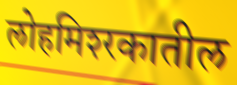
लोहमिश्रकातील